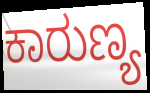
ಕಾರುಣ್ಯ